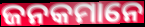
ଜନକମାନେ